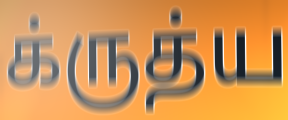
க்ருத்ய